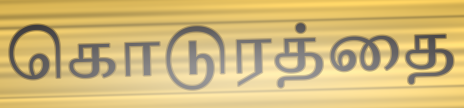
கொடுரத்தை